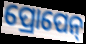
ପ୍ରୋପେନ୍